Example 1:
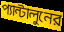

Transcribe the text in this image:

প্যান্টালুনের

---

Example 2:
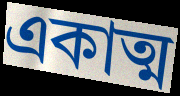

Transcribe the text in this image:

একাত্ম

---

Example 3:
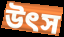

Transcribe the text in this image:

উৎস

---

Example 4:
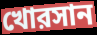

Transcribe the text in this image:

খোরসান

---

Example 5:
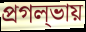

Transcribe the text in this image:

প্রগল্‌ভায়